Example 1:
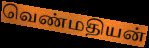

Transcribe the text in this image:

வெண்மதியன்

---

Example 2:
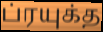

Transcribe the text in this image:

ப்ரயுக்த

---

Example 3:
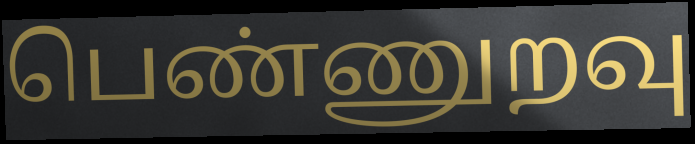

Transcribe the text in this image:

பெண்ணுறவு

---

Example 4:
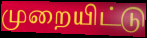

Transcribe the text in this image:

முறையிட்டு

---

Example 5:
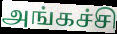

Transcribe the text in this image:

அங்கச்சி